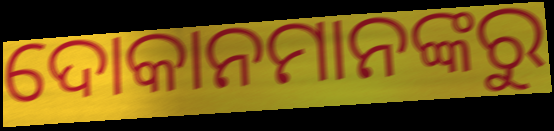
ଦୋକାନମାନଙ୍କରୁ